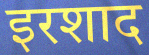
इरशाद